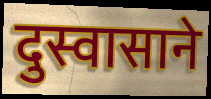
दुस्वासाने